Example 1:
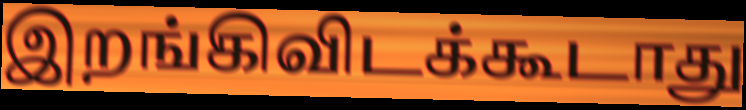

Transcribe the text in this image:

இறங்கிவிடக்கூடாது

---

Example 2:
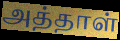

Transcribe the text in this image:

அத்தாள்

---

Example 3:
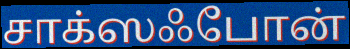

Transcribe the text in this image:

சாக்ஸஃபோன்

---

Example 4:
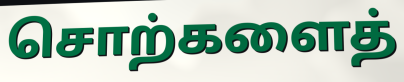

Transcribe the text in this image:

சொற்களைத்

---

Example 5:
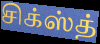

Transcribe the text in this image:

சிக்ஸ்த்